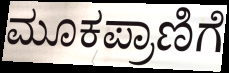
ಮೂಕಪ್ರಾಣಿಗೆ